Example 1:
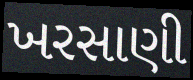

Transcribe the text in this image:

ખરસાણી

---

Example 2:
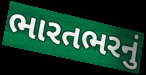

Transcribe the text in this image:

ભારતભરનું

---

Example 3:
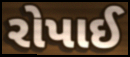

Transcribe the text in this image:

રોપાઈ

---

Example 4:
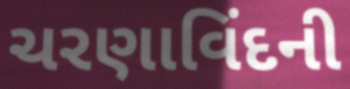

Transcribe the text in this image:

ચરણાવિંદની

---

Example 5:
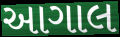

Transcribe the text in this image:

આગાલ